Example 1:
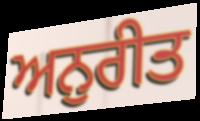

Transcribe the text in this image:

ਅਨੁਰੀਤ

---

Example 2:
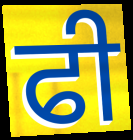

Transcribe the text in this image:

ਫੀ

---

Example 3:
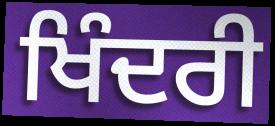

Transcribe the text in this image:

ਖਿੰਦਰੀ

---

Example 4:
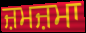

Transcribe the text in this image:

ਜ਼ਮਜ਼ਮਾ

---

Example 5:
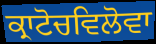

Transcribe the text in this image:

ਕ੍ਰਾਟੋਚਵਿਲੋਵਾ